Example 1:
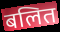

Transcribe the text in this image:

बलित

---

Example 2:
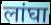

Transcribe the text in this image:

लांघा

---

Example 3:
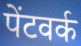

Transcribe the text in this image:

पेंटवर्क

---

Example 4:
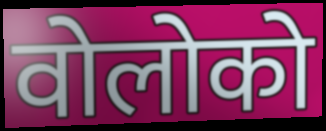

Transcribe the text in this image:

वोलोको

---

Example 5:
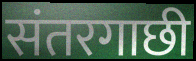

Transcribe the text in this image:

संतरगाछी